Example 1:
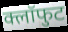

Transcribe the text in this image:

क्लॉफुट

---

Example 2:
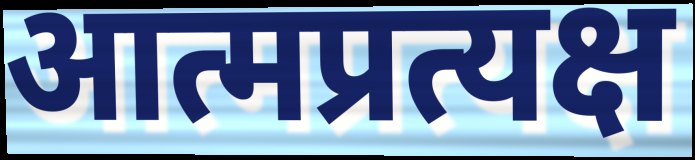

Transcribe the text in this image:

आत्मप्रत्यक्ष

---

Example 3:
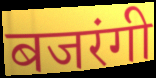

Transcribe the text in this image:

बजरंगी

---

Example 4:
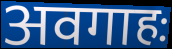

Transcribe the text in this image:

अवगाहः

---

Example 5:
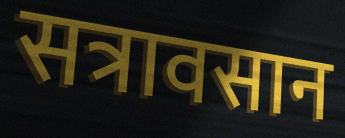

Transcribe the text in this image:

सत्रावसान